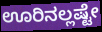
ಊರಿನಲ್ಲಷ್ಟೇ